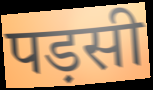
पड़सी